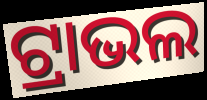
ଟ୍ରାଭଲ